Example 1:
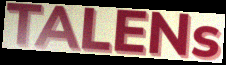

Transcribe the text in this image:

TALENs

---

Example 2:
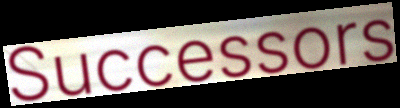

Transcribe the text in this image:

Successors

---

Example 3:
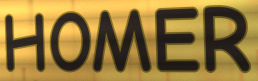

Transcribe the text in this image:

HOMER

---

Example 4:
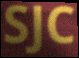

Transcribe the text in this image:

SJC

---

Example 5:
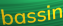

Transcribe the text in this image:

bassin